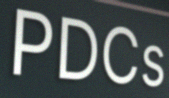
PDCs